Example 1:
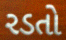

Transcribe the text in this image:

રડતો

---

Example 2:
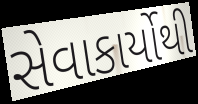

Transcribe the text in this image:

સેવાકાર્યોથી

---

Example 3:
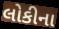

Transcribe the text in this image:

લોકીના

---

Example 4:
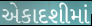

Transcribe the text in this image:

એકાદશીમાં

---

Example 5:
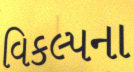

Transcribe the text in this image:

વિકલ્પના